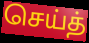
செய்த்